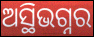
ଅସ୍ଥିଭଗ୍ନର